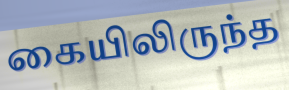
கையிலிருந்த